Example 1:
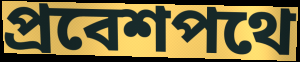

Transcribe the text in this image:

প্রবেশপথে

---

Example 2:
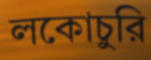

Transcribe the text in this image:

লকোচুরি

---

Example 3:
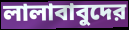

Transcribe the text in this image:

লালাবাবুদের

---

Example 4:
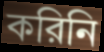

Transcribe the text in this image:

করিনি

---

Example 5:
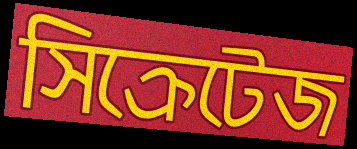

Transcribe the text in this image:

সিক্রেটেজ